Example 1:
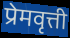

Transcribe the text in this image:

प्रेमवृत्ती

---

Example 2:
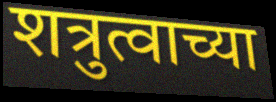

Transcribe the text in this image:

शत्रुत्वाच्या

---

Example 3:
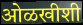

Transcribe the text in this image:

ओळखीशी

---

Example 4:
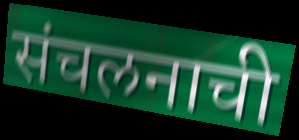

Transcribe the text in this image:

संचलनाची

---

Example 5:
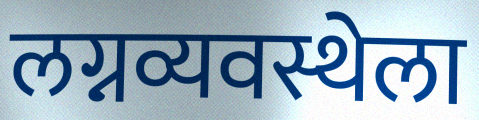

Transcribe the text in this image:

लग्नव्यवस्थेला